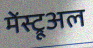
मेंस्ट्रूअल